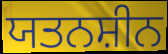
ਯਤਨਸ਼ੀਨ